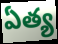
ఏత్య